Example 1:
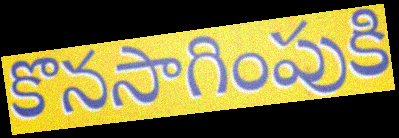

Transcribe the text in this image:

కొనసాగింపుకి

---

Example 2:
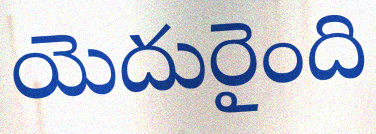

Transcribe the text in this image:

యెదురైంది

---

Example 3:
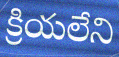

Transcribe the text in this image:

క్రియలేని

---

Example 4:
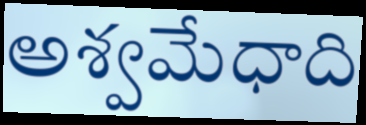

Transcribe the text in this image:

అశ్వమేధాది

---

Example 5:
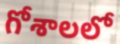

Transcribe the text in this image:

గోశాలలో